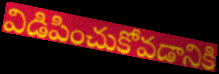
విడిపించుకోవడానికి